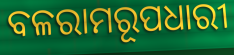
ବଳରାମରୂପଧାରୀ